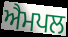
ਐਮਪਲ